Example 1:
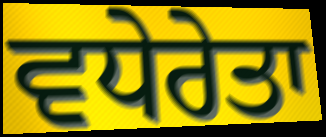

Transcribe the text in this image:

ਵਧੇਰੇਤਾ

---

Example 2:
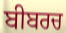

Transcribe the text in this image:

ਬੀਬਰਚ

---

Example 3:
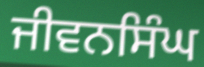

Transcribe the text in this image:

ਜੀਵਨਸਿੰਘ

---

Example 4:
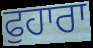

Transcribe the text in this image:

ਫੁਹਾਰਾ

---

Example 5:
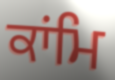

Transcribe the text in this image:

ਕਾਂਮਿ